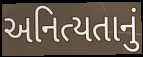
અનિત્યતાનું